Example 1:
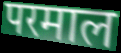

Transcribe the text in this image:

परमाल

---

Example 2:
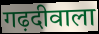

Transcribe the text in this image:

गढ़दीवाला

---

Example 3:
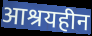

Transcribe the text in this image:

आश्रयहीन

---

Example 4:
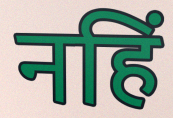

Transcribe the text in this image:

नहिं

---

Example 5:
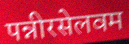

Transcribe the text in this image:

पन्नीरसेलवम